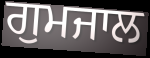
ਗੁਮਜਾਲ